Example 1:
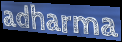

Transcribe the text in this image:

adharma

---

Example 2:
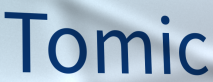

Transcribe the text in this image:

Tomic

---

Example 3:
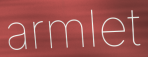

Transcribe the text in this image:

armlet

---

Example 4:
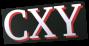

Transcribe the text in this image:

CXY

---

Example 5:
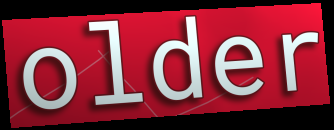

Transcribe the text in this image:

older